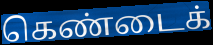
கெண்டைக்